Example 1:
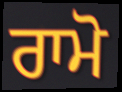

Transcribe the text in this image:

ਰਾਮੋ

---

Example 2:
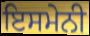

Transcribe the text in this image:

ਇਸਮੇਨੀ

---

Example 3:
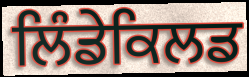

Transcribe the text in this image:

ਲਿੰਡੇਕਿਲਡ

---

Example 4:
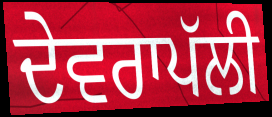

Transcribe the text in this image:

ਦੇਵਰਾਪੱਲੀ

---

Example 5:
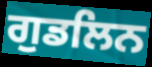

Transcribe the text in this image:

ਗੁਡਲਿਨ